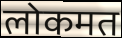
लोकमत